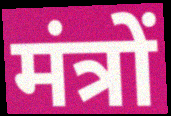
मंत्रों